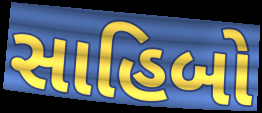
સાહિબો